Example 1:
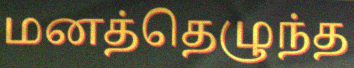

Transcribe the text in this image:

மனத்தெழுந்த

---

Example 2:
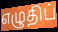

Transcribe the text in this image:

எழுதிப்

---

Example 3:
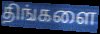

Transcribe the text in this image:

திங்களை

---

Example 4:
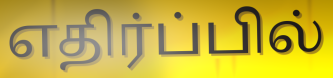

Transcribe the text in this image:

எதிர்ப்பில்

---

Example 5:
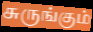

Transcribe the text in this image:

சுருங்கும்